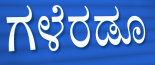
ಗಳೆರಡೂ